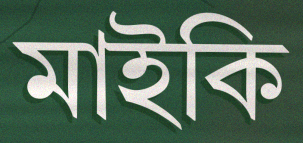
মাইকি